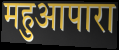
महुआपारा